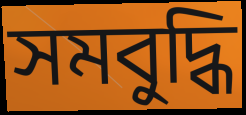
সমবুদ্ধি